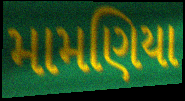
મામણિયા